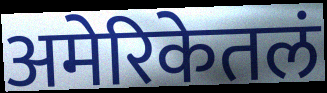
अमेरिकेतलं